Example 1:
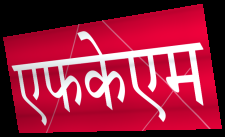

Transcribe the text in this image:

एफकेएम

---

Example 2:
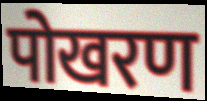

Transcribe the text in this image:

पोखरण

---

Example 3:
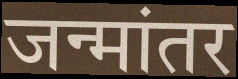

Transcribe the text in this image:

जन्मांतर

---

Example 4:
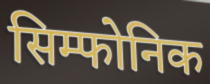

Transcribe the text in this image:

सिम्फोनिक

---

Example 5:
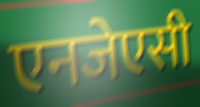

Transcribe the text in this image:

एनजेएसी